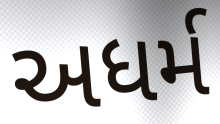
અધર્મ